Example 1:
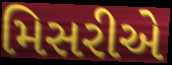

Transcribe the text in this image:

મિસરીએ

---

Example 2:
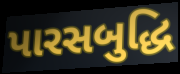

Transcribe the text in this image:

પારસબુદ્ધિ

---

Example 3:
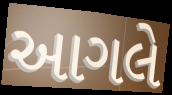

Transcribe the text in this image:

આગલે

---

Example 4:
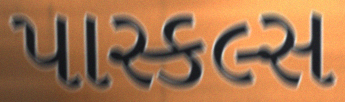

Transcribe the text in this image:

પાસ્કલ્સ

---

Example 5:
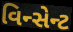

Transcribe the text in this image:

વિન્સેન્ટ